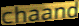
chaand